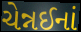
ચેન્નઈનાં